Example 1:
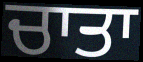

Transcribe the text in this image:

ਚਾਤਾ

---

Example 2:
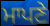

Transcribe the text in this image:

ਮਾਪਣੇ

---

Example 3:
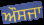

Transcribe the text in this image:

ਔਸਜਾ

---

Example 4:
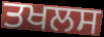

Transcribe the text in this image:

ਤਖਲਸ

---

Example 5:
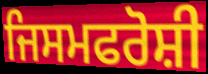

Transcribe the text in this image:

ਜਿਸਮਫਰੋਸ਼ੀ